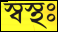
স্বস্থঃ